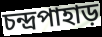
চন্দ্রপাহাড়